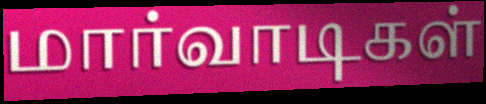
மார்வாடிகள்